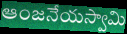
ఆంజనేయస్వామి